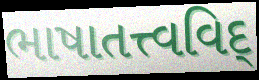
ભાષાતત્ત્વવિદ્